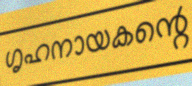
ഗൃഹനായകന്റെ